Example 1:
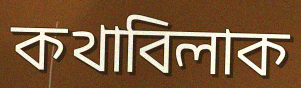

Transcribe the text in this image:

কথাবিলাক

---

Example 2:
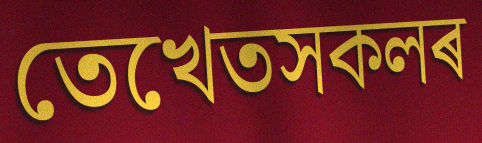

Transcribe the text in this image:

তেখেতসকলৰ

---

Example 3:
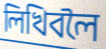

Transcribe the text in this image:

লিখিবলৈ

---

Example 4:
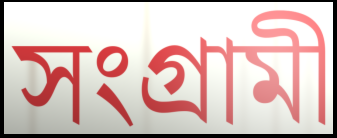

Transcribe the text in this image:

সংগ্ৰামী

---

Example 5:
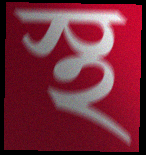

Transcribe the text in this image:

স্থ